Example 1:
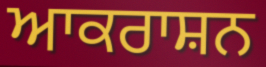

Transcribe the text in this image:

ਆਕਰਾਸ਼ਨ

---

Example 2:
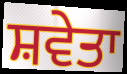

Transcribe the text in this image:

ਸ਼ਵੇਤਾ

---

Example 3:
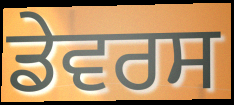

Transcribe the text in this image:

ਡੇਵਰਸ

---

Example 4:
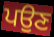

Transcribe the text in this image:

ਪਉਣ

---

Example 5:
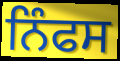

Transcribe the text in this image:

ਨਿੰਫਸ